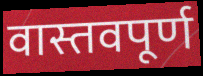
वास्तवपूर्ण